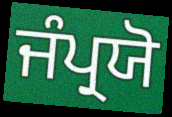
ਜੰਪ੍ਰਯੋ